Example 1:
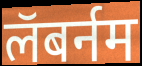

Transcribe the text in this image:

लॅबर्नम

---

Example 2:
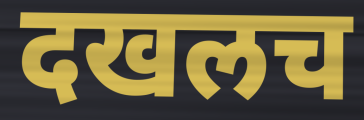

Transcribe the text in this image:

दखलच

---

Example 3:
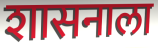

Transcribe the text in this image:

शासनाला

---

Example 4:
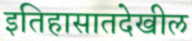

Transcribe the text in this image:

इतिहासातदेखील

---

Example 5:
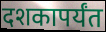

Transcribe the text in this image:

दशकापर्यंत